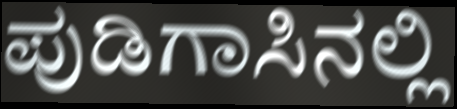
ಪುಡಿಗಾಸಿನಲ್ಲಿ